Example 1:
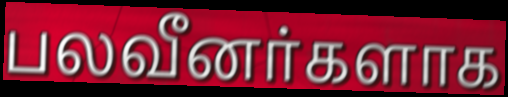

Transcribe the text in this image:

பலவீனர்களாக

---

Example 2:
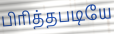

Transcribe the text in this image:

பிரித்தபடியே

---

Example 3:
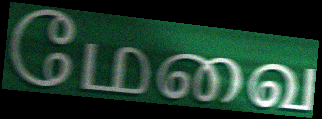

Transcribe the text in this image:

மேவை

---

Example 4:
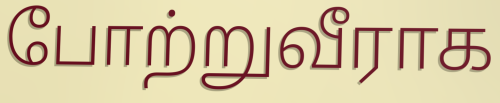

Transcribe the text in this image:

போற்றுவீராக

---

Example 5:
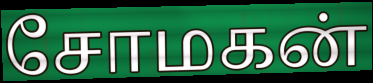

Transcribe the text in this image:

சோமகன்